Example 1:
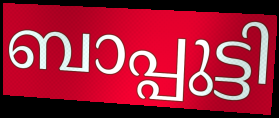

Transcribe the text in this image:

ബാപ്പുട്ടി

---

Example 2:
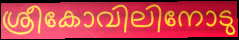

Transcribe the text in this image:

ശ്രീകോവിലിനോടു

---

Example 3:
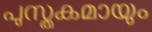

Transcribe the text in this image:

പുസ്തകമായും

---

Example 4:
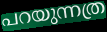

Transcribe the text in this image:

പറയുന്നത്ര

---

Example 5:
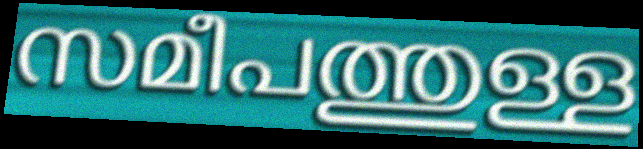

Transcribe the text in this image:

സമീപത്തുള്ള